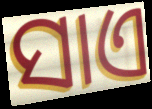
ସାଏ